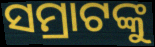
ସମ୍ରାଟଙ୍କୁ